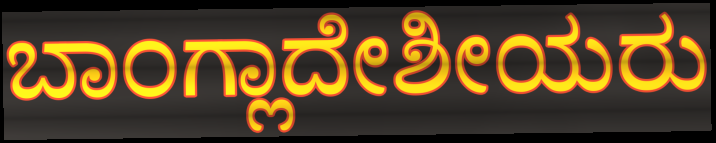
ಬಾಂಗ್ಲಾದೇಶೀಯರು